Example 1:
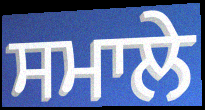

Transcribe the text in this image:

ਸਮਾਲੇ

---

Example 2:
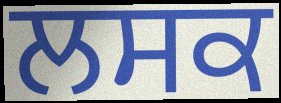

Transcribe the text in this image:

ਲਸਕ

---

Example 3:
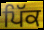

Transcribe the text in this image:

ਪਿੱਕ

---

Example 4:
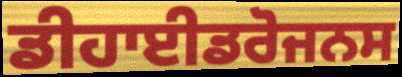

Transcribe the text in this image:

ਡੀਹਾਈਡਰੋਜਨਸ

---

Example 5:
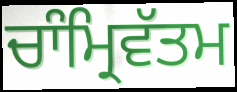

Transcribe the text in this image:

ਚਾੰਮ੍ਰਿਵੱਤਮ